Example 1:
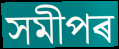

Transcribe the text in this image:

সমীপৰ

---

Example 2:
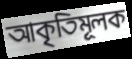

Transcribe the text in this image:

আকৃতিমূলক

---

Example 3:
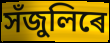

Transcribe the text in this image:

সঁজুলিৰে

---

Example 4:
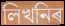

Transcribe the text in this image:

লিখনিৰ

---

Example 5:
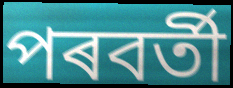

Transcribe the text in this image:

পৰবৰ্তী